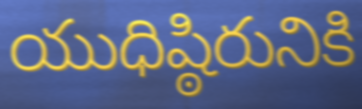
యుధిష్ఠిరునికి